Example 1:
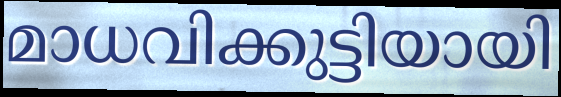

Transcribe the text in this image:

മാധവിക്കുട്ടിയായി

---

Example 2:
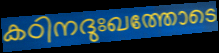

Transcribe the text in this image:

കഠിനദുഃഖത്തോടെ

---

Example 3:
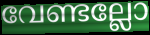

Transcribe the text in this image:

വേണ്ടല്ലോ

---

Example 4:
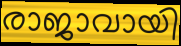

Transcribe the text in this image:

രാജാവായി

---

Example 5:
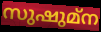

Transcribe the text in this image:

സുഷുമ്ന